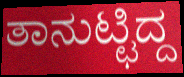
ತಾನುಟ್ಟಿದ್ದ